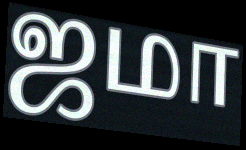
ஜமா